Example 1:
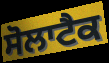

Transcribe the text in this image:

ਸੋਲਾਟੈਕ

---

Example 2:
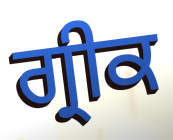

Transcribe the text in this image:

ਗ੍ਰੀਕ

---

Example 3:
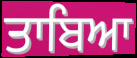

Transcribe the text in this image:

ਤਾਬਿਆ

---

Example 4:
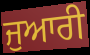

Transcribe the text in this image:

ਜੁਆਰੀ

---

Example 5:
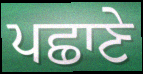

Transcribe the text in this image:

ਪਛਾਣੇ